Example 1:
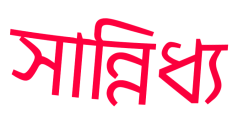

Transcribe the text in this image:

সান্নিধ্য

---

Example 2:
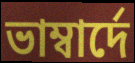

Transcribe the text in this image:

ভাম্বাৰ্দে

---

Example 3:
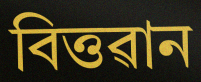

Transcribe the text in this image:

বিত্তৱান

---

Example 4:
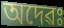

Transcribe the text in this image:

অদেৱঃ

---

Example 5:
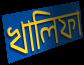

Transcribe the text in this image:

খালিফা